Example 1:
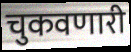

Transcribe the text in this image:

चुकवणारी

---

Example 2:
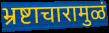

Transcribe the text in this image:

भ्रष्टाचारामुळं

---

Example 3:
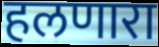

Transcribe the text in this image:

हलणारा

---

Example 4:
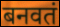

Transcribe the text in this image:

बनवतं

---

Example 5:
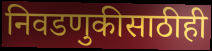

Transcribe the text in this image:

निवडणुकीसाठीही